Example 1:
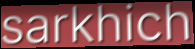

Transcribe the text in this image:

sarkhich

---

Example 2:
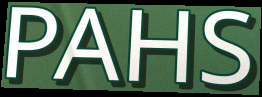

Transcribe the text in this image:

PAHS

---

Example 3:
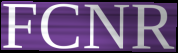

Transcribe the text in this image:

FCNR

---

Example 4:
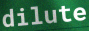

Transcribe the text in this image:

dilute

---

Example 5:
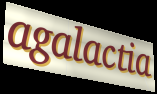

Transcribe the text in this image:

agalactia